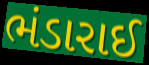
ભંડારાઈ